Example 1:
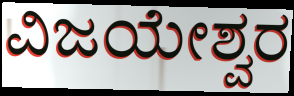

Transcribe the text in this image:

ವಿಜಯೇಶ್ವರ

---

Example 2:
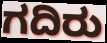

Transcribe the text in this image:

ಗದಿರು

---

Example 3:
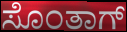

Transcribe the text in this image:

ಸೊಂತಾಗ್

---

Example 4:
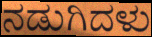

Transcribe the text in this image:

ನಡುಗಿದಳು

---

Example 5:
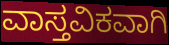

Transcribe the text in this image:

ವಾಸ್ತವಿಕವಾಗಿ